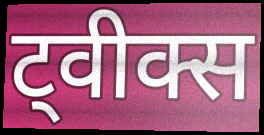
ट्वीक्स